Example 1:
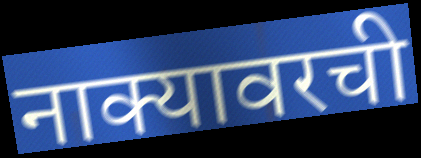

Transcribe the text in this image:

नाक्यावरची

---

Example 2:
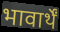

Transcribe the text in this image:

भावार्थें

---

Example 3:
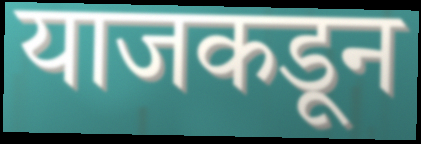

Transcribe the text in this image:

याजकडून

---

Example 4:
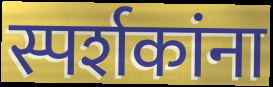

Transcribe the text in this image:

स्पर्शकांना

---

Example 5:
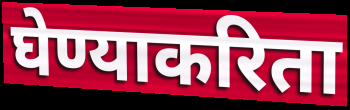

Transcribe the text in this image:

घेण्याकरिता